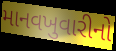
માનવખુવારીનો